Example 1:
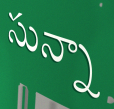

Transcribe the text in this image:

సున్నా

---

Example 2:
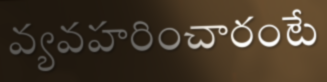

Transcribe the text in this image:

వ్యవహరించారంటే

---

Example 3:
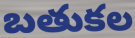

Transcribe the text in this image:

బతుకల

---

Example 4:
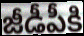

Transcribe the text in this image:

జీడీపీకి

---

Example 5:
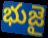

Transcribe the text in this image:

భుజై